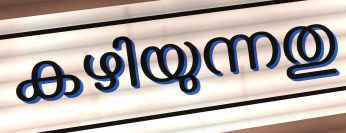
കഴിയുന്നതു